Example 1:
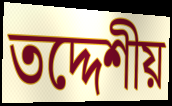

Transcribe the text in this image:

তদ্দেশীয়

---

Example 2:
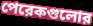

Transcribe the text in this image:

পেরেকগুলোর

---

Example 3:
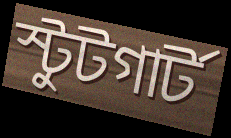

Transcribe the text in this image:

স্টুটগার্ট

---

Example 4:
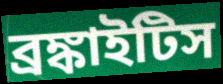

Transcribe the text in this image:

ব্রঙ্কাইটিস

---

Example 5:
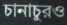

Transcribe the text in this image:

চানাচুরও